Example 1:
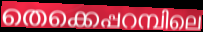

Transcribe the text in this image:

തെക്കെപ്പറമ്പിലെ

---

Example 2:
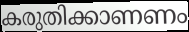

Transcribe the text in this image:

കരുതിക്കാണണം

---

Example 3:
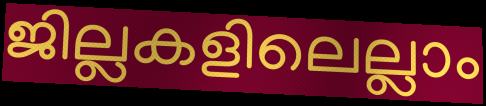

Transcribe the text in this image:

ജില്ലകളിലെല്ലാം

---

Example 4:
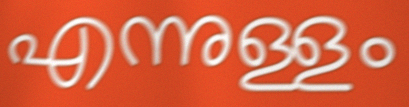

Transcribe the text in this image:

എന്നുള്ളം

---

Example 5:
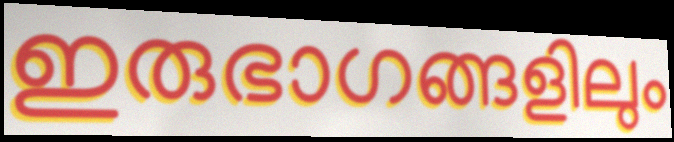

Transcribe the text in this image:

ഇരുഭാഗങ്ങളിലും